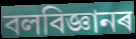
বলবিজ্ঞানৰ